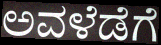
ಅವಳೆಡೆಗೆ